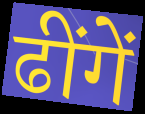
ढींगें